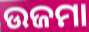
ଉଜମା